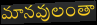
మానవులంతా